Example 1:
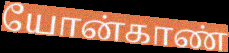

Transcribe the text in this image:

யோன்காண்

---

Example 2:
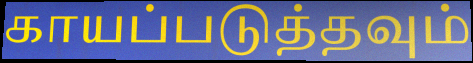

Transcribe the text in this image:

காயப்படுத்தவும்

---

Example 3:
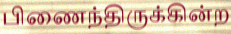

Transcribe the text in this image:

பிணைந்திருக்கின்ற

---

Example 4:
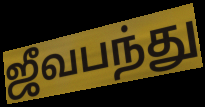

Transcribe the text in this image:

ஜீவபந்து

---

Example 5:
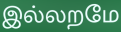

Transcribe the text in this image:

இல்லறமே